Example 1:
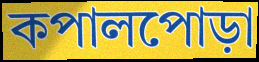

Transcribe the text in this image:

কপালপোড়া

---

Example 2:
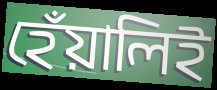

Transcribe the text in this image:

হেঁয়ালিই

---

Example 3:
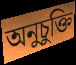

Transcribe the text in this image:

অনুচুক্তি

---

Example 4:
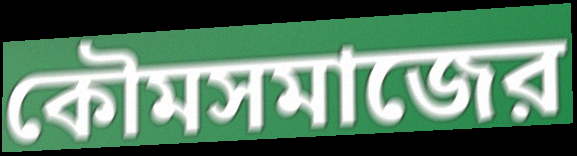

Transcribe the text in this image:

কৌমসমাজের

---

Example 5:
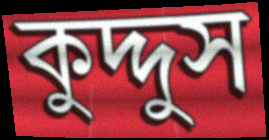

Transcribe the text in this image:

কুদ্দুস